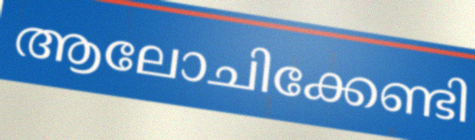
ആലോചിക്കേണ്ടി